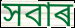
সবাৰ